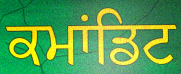
ਕਮਾਂਡਿਟ